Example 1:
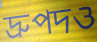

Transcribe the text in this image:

দ্রুপদও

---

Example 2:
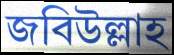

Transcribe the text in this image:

জবিউল্লাহ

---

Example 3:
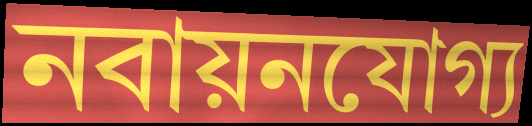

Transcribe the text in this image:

নবায়নযোগ্য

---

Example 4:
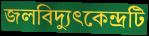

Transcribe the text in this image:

জলবিদ্যুৎকেন্দ্রটি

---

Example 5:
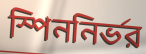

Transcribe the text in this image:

স্পিননির্ভর